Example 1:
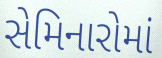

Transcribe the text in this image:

સેમિનારોમાં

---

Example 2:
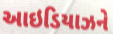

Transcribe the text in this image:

આઇડિયાઝને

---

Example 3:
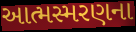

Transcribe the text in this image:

આત્મસ્મરણના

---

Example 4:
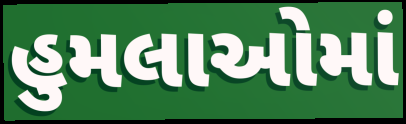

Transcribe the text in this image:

હુમલાઓમાં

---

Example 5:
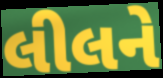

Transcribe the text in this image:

લીલને